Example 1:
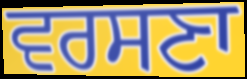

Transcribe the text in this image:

ਵਰਸਣਾ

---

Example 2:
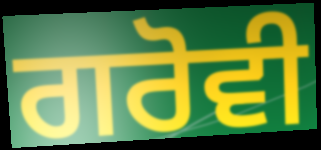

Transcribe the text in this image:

ਗਰੋਵੀ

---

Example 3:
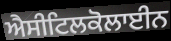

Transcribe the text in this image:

ਐਸੀਟਿਲਕੋਲਾਈਨ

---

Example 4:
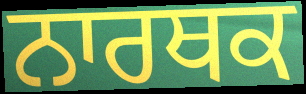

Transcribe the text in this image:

ਨਾਰਥਕ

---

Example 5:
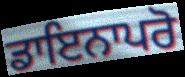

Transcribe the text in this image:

ਡਾਇਨਾਪਰੋ